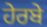
ਹੇਰਬੇ